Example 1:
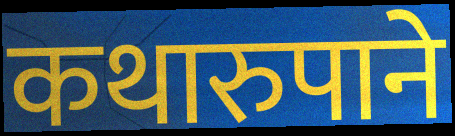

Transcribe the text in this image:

कथारुपाने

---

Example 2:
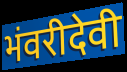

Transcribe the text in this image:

भंवरीदेवी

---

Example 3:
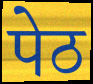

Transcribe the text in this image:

पेठ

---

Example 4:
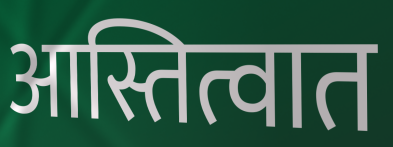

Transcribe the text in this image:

आस्तित्वात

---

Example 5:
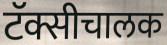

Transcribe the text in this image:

टॅक्सीचालक